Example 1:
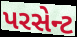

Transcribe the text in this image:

પરસેન્ટ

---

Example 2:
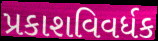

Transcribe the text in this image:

પ્રકાશવિવર્ધક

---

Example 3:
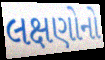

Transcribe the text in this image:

લક્ષણોનો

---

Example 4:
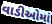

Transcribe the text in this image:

વાડીઓમાં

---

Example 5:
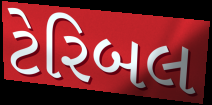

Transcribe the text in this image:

ટેરિબલ